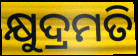
କ୍ଷୁଦ୍ରମତି